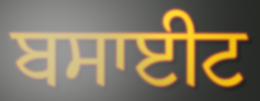
ਬਸਾਈਟ